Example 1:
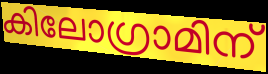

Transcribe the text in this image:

കിലോഗ്രാമിന്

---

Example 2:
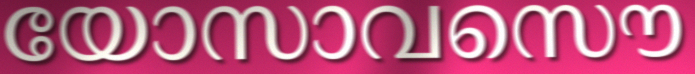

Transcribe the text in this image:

യോസാവസൌ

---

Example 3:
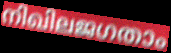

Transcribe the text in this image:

നിഖിലജഗതാം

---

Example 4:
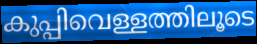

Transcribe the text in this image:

കുപ്പിവെള്ളത്തിലൂടെ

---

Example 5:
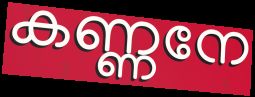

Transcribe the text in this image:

കണ്ണനേ